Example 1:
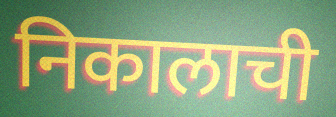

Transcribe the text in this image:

निकालाची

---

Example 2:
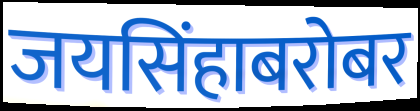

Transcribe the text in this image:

जयसिंहाबरोबर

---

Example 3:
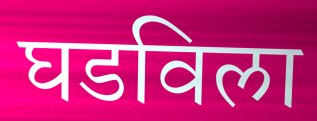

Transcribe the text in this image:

घडविला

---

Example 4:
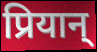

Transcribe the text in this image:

प्रियान्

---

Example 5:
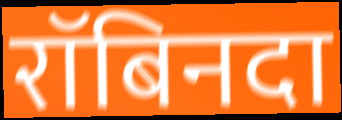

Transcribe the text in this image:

रॉबिनदा